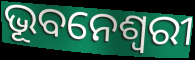
ଭୂବନେଶ୍ୱରୀ